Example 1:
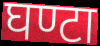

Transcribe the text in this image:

घण्टा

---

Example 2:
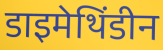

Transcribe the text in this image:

डाइमेथिंडीन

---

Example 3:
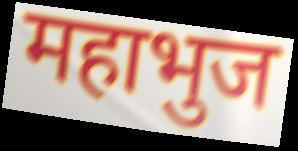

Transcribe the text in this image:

महाभुज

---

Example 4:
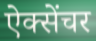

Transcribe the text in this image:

ऐक्सेंचर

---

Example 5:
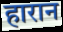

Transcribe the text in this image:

हारान